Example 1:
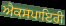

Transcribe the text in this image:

ਐਕਸਪਾਇਰੀ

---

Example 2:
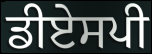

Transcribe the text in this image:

ਡੀਏਸਪੀ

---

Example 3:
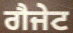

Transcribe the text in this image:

ਗੈਜੇਟ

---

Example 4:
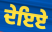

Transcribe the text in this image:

ਦੇਇਏ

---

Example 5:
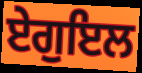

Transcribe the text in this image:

ਏਗੁਇਲ